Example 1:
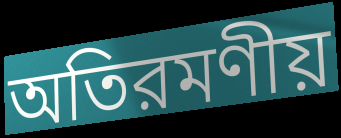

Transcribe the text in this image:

অতিরমণীয়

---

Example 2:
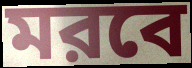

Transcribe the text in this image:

মরবে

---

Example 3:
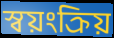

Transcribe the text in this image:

স্বয়ংক্রিয়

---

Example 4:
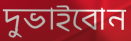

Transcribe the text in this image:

দুভাইবোন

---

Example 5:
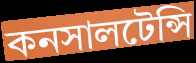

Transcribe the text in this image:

কনসালটেন্সি